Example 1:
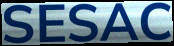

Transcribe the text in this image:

SESAC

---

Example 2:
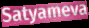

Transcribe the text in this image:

Satyameva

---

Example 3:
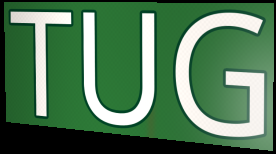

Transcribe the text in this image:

TUG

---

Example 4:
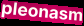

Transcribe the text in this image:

pleonasm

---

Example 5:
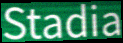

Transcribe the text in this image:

Stadia